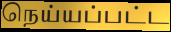
நெய்யப்பட்ட